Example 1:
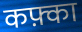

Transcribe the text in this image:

कफ़्का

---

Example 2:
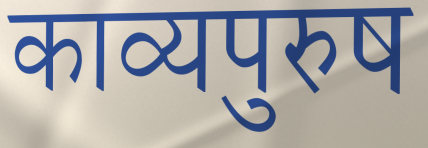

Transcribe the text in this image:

काव्यपुरुष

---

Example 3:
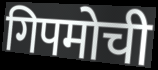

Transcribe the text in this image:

गिपमोची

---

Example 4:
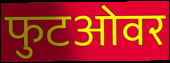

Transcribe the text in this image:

फुटओवर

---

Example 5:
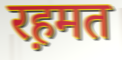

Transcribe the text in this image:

रह़मत